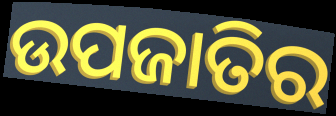
ଉପଜାତିର